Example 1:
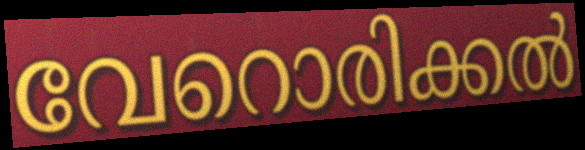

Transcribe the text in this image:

വേറൊരിക്കൽ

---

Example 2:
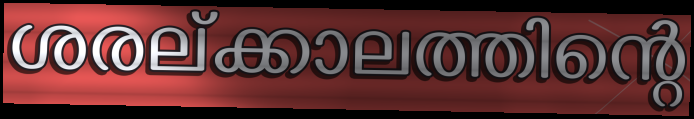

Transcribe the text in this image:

ശരല്ക്കാലത്തിന്റെ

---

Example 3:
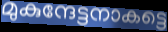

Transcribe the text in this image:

മുകുന്ദേട്ടനാകട്ടെ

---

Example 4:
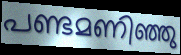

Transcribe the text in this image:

പണ്ടമണിഞ്ഞു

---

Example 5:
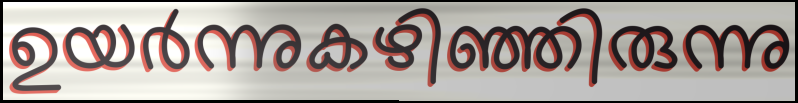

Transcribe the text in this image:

ഉയർന്നുകഴിഞ്ഞിരുന്നു